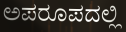
ಅಪರೂಪದಲ್ಲಿ